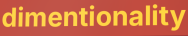
dimentionality